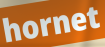
hornet